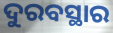
ଦୁରବସ୍ଥାର